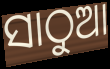
ସାଠୁଆ